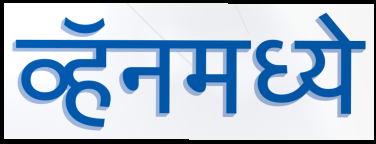
व्हॅनमध्ये